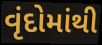
વૃંદોમાંથી